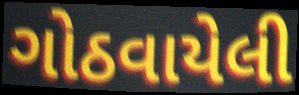
ગોઠવાયેલી